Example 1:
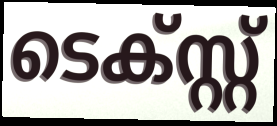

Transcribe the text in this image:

ടെക്സ്റ്റ്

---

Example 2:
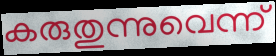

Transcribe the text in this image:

കരുതുന്നുവെന്ന്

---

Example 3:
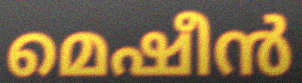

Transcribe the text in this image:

മെഷീൻ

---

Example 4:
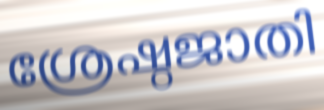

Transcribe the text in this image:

ശ്രേഷ്ഠജാതി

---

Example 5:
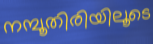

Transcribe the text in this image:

നമ്പൂതിരിയിലൂടെ